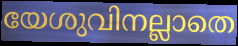
യേശുവിനല്ലാതെ